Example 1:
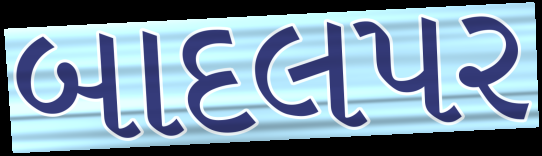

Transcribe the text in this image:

બાદલપર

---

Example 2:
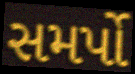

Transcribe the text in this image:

સમર્પો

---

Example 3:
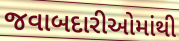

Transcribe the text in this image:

જવાબદારીઓમાંથી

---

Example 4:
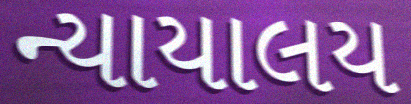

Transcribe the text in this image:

ન્યાયાલય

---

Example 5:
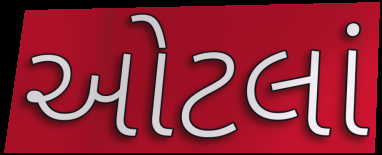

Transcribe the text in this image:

ઓટલાં